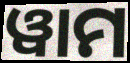
ୱାମ